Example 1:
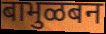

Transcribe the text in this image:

बाभुळबन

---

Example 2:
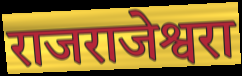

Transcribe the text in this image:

राजराजेश्वरा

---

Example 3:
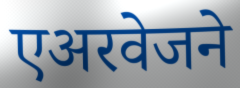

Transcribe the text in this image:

एअरवेजने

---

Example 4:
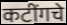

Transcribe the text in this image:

कटींगचे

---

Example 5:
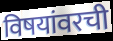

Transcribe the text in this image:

विषयांवरची